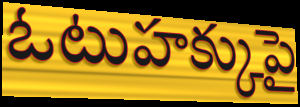
ఓటుహక్కుపై